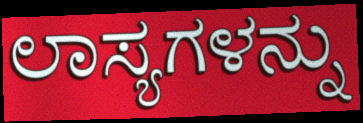
ಲಾಸ್ಯಗಳನ್ನು